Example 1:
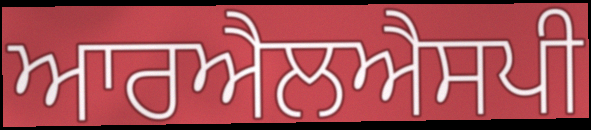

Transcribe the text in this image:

ਆਰਐਲਐਸਪੀ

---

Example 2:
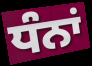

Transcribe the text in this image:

ਧੰਨਾਂ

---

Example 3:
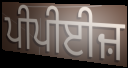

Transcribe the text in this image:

ਪੀਪੀਈਜ਼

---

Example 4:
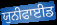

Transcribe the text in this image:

ਯੁਨੀਫਾਈਡ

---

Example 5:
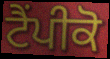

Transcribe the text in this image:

ਟੈਂਪੀਕੋ